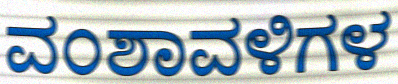
ವಂಶಾವಳಿಗಳ